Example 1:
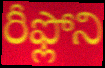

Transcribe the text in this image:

రీఫ్లోని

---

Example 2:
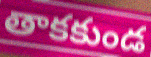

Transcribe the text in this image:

తాకకుండ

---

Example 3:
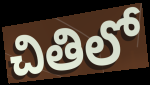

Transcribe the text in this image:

చితిలో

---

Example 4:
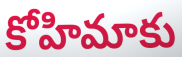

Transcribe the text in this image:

కోహిమాకు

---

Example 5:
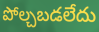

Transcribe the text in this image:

పోల్చబడలేదు